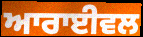
ਆਰਾਈਵਲ